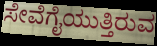
ಸೇವೆಗೈಯುತ್ತಿರುವ